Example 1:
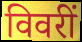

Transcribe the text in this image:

विवरीं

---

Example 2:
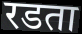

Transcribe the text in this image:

रडता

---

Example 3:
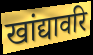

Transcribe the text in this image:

खांद्यावरि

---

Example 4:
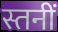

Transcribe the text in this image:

स्तनीं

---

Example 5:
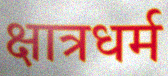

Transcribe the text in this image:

क्षात्रधर्म